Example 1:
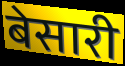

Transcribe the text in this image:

बेसारी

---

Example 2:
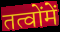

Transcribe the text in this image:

तत्वोंमें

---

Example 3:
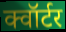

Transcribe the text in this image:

क्वॉर्टर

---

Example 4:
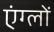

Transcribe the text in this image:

एंग्लों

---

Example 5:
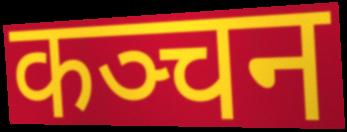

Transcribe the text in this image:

कञ्चन